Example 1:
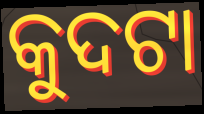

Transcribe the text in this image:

କୁଦଟା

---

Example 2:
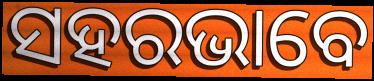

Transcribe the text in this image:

ସହରଭାବେ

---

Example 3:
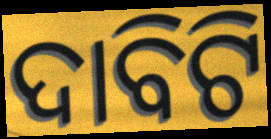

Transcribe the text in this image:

ଦାବିଟି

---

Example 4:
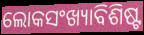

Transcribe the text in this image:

ଲୋକସଂଖ୍ୟାବିଶିଷ୍ଟ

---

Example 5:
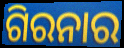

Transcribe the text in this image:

ଗିରନାର